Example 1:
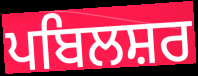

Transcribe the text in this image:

ਪਬਿਲਸ਼ਰ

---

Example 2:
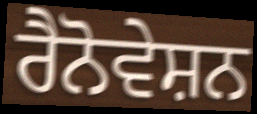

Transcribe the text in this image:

ਰੈਨੋਵੇਸ਼ਨ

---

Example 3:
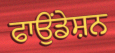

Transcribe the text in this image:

ਫਾਉਂਡੇਸ਼ਨ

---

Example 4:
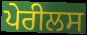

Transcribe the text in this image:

ਪੇਰੀਲਸ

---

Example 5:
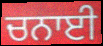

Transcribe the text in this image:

ਚਨਾਈ